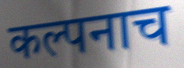
कल्पनाच